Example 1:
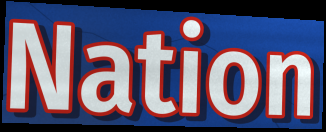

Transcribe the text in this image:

Nation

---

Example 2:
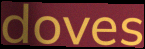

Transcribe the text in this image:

doves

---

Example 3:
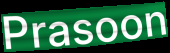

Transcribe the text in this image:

Prasoon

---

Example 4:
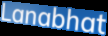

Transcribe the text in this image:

Lanabhat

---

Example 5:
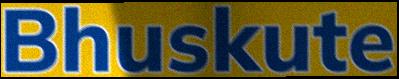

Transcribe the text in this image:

Bhuskute